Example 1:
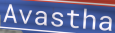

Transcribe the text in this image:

Avastha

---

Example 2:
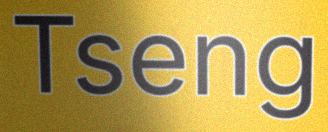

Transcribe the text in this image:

Tseng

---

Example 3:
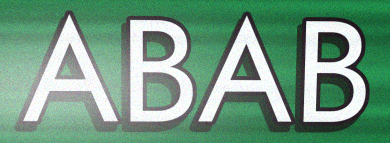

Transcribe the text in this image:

ABAB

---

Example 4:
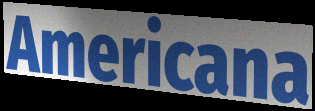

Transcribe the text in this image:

Americana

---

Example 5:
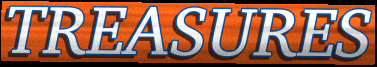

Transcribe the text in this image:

TREASURES